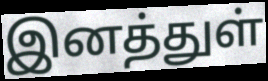
இனத்துள்